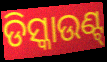
ଡିସ୍କାଉଣ୍ଟ୍